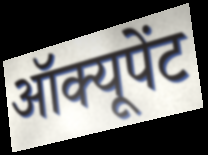
ऑक्यूपेंट